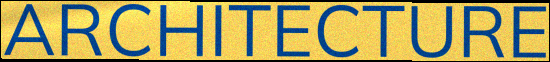
ARCHITECTURE